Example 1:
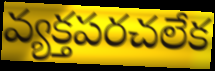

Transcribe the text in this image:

వ్యక్తపరచలేక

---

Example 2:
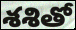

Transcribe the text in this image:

శశితో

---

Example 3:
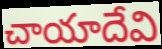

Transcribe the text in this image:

చాయాదేవి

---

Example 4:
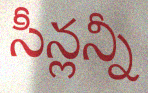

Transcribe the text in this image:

సీన్లన్నీ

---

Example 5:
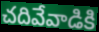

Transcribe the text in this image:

చదివేవాడికి